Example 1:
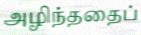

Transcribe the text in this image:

அழிந்ததைப்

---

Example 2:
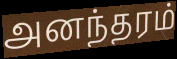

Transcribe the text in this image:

அனந்தரம்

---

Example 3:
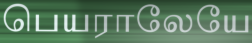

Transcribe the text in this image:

பெயராலேயே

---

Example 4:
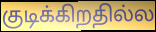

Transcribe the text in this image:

குடிக்கிறதில்ல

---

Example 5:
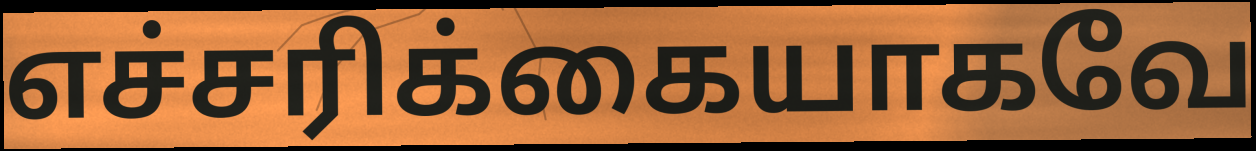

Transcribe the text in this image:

எச்சரிக்கையாகவே